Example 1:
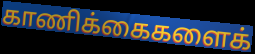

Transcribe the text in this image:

காணிக்கைகளைக்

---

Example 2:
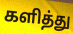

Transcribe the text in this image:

களித்து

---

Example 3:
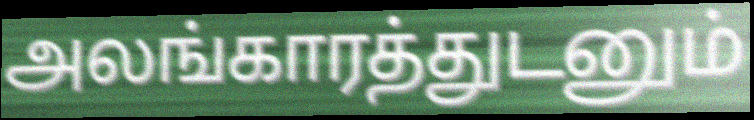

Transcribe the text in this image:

அலங்காரத்துடனும்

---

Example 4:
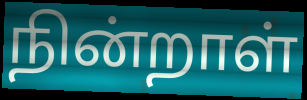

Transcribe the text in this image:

நின்றாள்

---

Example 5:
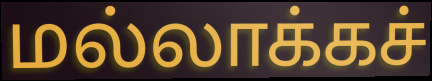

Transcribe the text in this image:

மல்லாக்கச்